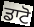
ਡਾਟੋ